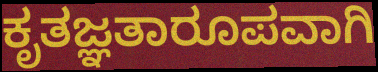
ಕೃತಜ್ಞತಾರೂಪವಾಗಿ